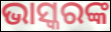
ଭାସ୍କରଙ୍କ